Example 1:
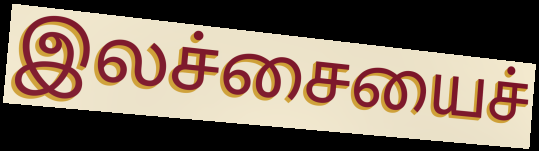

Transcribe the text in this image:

இலச்சையைச்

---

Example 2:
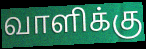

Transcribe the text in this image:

வாளிக்கு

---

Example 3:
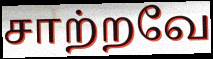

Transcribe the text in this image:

சாற்றவே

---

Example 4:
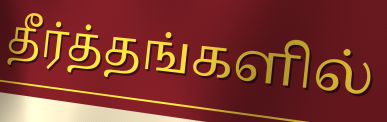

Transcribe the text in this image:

தீர்த்தங்களில்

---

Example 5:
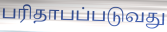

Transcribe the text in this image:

பரிதாபப்படுவது